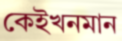
কেইখনমান